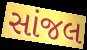
સાંજલ